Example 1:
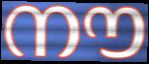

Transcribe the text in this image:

നൗ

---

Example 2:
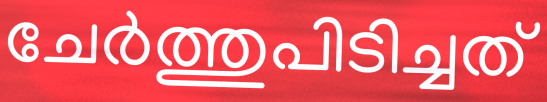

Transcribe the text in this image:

ചേർത്തുപിടിച്ചത്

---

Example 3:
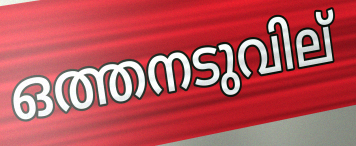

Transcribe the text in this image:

ഒത്തനടുവില്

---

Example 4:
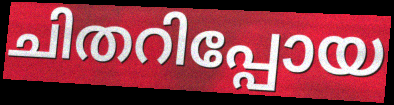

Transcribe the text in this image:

ചിതറിപ്പോയ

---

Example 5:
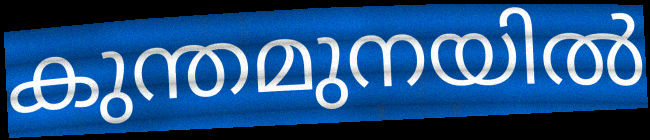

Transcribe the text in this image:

കുന്തമുനയിൽ